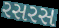
રસરસ